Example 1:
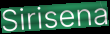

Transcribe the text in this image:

Sirisena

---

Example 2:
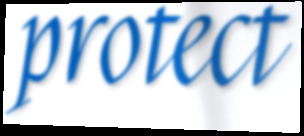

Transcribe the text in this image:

protect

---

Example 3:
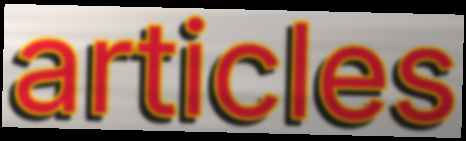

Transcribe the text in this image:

articles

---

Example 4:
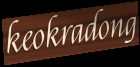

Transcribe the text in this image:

keokradong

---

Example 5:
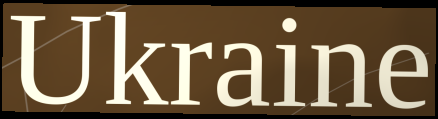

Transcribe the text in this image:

Ukraine